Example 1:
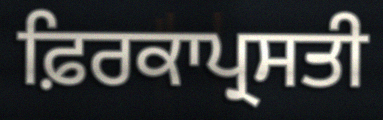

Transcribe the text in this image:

ਫ਼ਿਰਕਾਪ੍ਰਸਤੀ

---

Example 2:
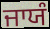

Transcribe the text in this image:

ਜਾਯੰ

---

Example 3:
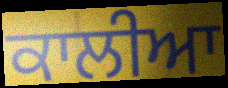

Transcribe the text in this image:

ਕਾਲੀਆ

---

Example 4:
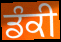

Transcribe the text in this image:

ਡੰਕੀ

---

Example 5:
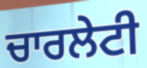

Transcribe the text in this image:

ਚਾਰਲੇਟੀ